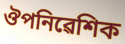
ঔপনিৱেশিক